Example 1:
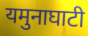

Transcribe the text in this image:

यमुनाघाटी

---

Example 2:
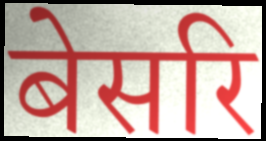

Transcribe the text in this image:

बेसरि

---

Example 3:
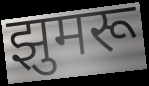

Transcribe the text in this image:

झुमरू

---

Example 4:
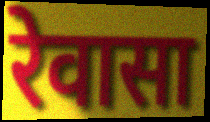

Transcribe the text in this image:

रेवासा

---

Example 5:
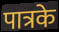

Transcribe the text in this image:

पात्रके